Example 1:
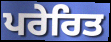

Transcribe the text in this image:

ਪਰੇਰਿਤ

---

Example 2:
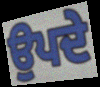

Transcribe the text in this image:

ਉਪਦੇ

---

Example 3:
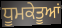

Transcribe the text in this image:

ਧੂਮਕੇਤੂਆਂ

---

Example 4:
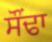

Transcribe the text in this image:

ਸੌਂਢਾ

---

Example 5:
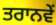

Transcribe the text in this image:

ਤਰਾਨਵੇਂ